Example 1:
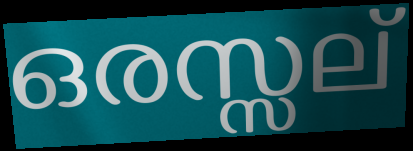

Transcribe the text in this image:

ഒരസ്സല്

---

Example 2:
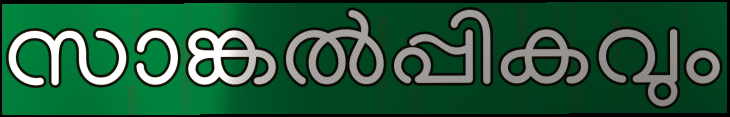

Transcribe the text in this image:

സാങ്കൽപ്പികവും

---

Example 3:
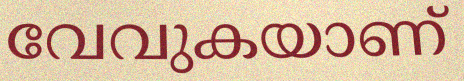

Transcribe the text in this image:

വേവുകയാണ്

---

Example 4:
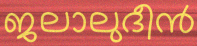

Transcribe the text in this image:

ജലാലുദീൻ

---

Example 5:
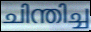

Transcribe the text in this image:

ചിന്തിച്ച